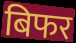
बिफर